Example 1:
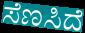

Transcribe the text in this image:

ಸೆಣಸಿದೆ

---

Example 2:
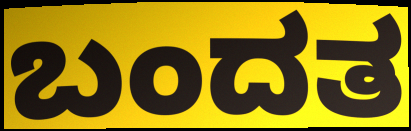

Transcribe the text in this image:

ಬಂದತ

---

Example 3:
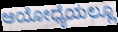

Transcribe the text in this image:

ಅಯೋಧ್ಯೆಯಲ್ಲೂ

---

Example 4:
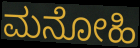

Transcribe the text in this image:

ಮನೋಹಿ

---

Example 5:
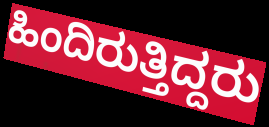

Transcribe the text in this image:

ಹಿಂದಿರುತ್ತಿದ್ದರು